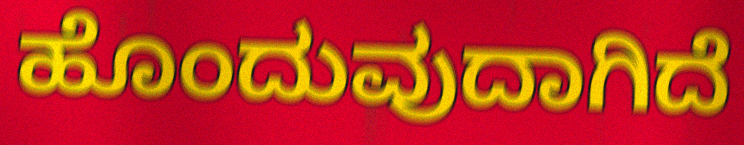
ಹೊಂದುವುದಾಗಿದೆ